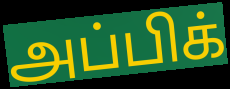
அப்பிக்